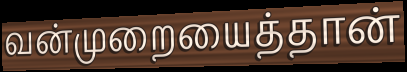
வன்முறையைத்தான்